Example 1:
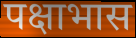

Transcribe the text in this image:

पक्षाभास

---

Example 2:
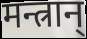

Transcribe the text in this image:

मन्त्रान्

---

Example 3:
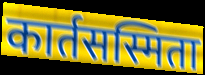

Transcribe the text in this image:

कार्तसस्मिता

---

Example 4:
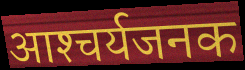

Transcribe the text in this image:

आश्‍चर्यजनक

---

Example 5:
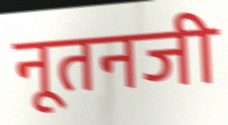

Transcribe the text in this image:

नूतनजी